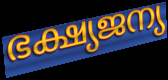
ഭക്ഷ്യജന്യ